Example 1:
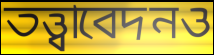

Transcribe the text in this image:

তত্ত্বাবেদনও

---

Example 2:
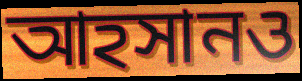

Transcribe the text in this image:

আহসানও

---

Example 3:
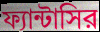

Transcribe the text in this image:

ফ্যান্টাসির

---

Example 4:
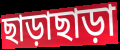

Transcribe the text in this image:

ছাড়াছাড়া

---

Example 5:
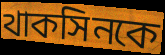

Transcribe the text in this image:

থাকসিনকে